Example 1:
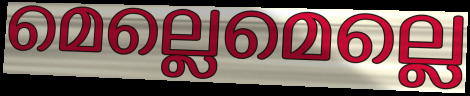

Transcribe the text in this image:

മെല്ലെമെല്ലെ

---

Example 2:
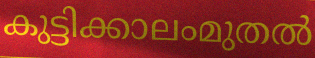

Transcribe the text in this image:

കുട്ടിക്കാലംമുതൽ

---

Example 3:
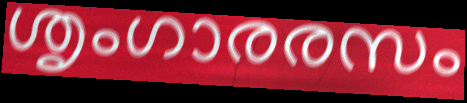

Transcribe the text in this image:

ശൃംഗാരരസം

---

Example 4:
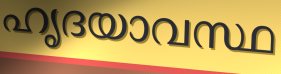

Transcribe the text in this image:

ഹൃദയാവസ്ഥ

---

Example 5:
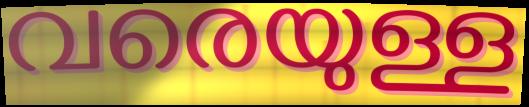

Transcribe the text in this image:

വരെയുള്ള